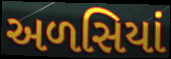
અળસિયાં